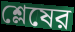
শ্লেষের